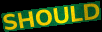
SHOULD